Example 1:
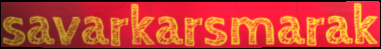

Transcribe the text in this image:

savarkarsmarak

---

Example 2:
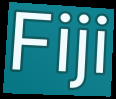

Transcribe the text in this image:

Fiji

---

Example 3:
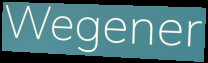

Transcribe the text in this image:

Wegener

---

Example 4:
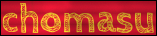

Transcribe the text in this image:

chomasu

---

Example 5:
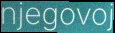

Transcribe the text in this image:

njegovoj